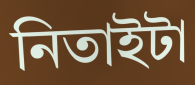
নিতাইটা